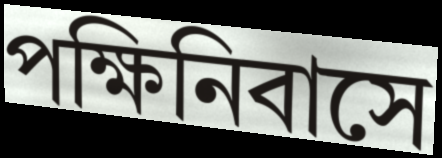
পক্ষিনিবাসে